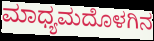
ಮಾಧ್ಯಮದೊಳಗಿನ